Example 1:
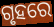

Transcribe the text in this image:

ଗୃହରେ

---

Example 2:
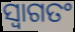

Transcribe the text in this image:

ସ୍ୱାଗତଂ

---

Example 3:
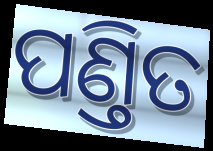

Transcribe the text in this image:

ପଣ୍ତିତ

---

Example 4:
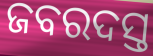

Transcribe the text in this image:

ଜବରଦସ୍ତ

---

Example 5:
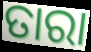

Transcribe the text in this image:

ତାରା